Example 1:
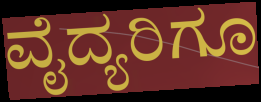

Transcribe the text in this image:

ವೈದ್ಯರಿಗೂ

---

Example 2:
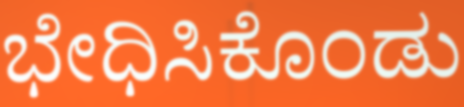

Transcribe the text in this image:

ಭೇಧಿಸಿಕೊಂಡು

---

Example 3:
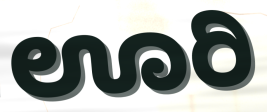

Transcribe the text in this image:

ಊರಿ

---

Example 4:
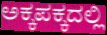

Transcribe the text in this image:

ಅಕ್ಕಪಕ್ಕದಲ್ಲಿ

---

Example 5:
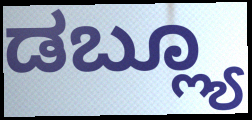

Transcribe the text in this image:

ಡಬ್ಲ್ಯೂ